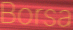
Borsa